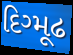
દિગ્મૂઢ